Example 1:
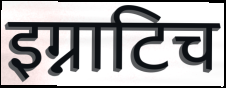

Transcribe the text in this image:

इग्नाटिच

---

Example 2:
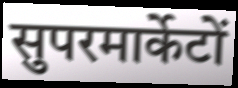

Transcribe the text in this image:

सुपरमार्केटों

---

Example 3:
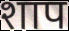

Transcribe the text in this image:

शाप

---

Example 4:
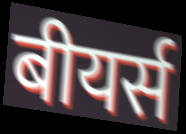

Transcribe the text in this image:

बीयर्स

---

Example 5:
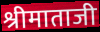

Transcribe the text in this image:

श्रीमाताजी